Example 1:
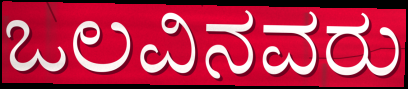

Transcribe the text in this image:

ಒಲವಿನವರು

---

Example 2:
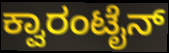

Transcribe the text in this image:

ಕ್ವಾರಂಟೈನ್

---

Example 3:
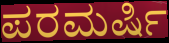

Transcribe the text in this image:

ಪರಮರ್ಷಿ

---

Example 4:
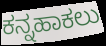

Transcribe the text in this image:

ಕನ್ನಹಾಕಲು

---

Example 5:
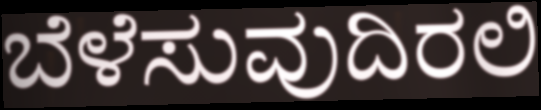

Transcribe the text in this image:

ಬೆಳೆಸುವುದಿರಲಿ